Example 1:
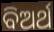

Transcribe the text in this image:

ବିଅର୍ଥ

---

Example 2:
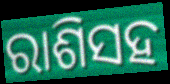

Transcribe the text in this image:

ରାଶିସହ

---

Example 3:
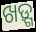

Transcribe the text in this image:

ଖଡ଼୍ଗ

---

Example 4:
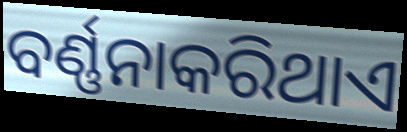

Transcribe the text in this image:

ବର୍ଣ୍ଣନାକରିଥାଏ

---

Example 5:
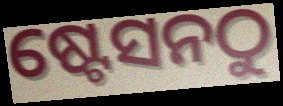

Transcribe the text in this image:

ଷ୍ଟେସନଠୁ